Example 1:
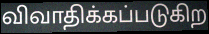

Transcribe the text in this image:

விவாதிக்கப்படுகிற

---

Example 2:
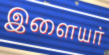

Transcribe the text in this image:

இளையர்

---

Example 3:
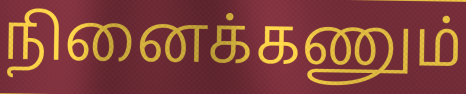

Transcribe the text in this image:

நினைக்கணும்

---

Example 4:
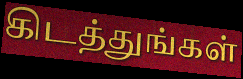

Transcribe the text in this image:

கிடத்துங்கள்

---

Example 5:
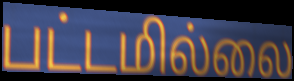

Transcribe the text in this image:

பட்டமில்லை